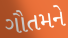
ગૌતમને